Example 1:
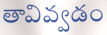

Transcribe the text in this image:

తావివ్వడం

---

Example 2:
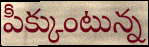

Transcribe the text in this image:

పీక్కుంటున్న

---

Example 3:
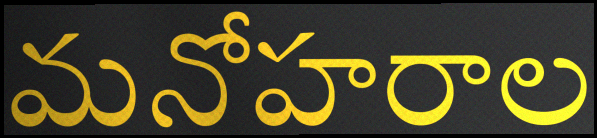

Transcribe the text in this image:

మనోహరాల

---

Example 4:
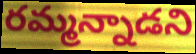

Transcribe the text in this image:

రమ్మన్నాడని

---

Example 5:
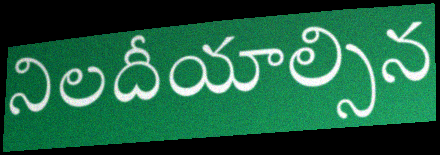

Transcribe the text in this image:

నిలదీయాల్సిన